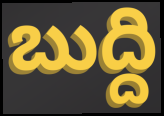
బుద్ది